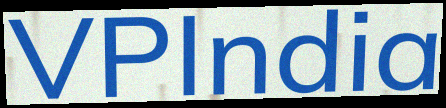
VPIndia